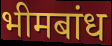
भीमबांध